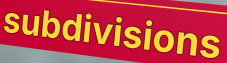
subdivisions